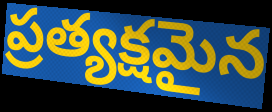
ప్రత్యక్షమైన